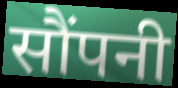
सौंपनी